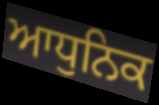
ਆਧੁਨਿਕ